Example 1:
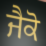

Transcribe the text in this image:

ਜੈਕੋ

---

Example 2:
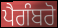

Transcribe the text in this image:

ਪੈਗੰਬਰੋ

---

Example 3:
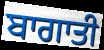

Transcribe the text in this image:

ਬਾਗਾਤੀ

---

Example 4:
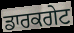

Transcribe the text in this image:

ਡਾਰਕਗੇਟ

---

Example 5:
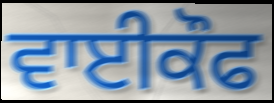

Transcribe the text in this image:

ਵਾਈਕੌਫ